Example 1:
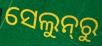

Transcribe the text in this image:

ସେଲୁନ୍‌ରୁ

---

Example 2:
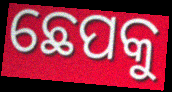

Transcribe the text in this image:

ଛେପକୁ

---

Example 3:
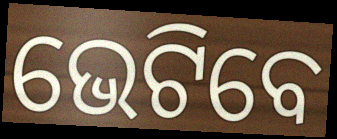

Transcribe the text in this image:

ଭେଟିବେ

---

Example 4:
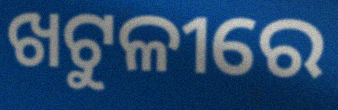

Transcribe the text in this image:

ଖଟୁଳୀରେ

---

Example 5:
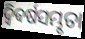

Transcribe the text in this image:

ଦ୍ଵିଵର୍ଷସମ୍ଭୃତା